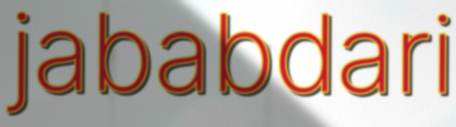
jababdari